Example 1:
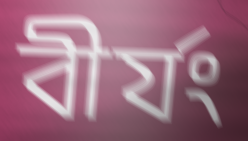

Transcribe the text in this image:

বীর্যং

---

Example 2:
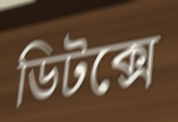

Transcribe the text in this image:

ডিটক্সে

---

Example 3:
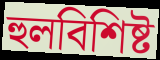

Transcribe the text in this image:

হুলবিশিষ্ট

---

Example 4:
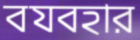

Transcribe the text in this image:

বযবহার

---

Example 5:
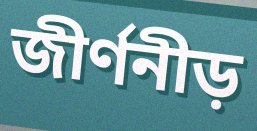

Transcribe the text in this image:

জীর্ণনীড়